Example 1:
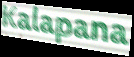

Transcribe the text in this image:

Kalapana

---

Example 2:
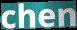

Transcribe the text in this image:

chen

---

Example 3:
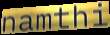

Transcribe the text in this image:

namthi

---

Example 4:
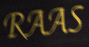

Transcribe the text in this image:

RAAS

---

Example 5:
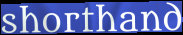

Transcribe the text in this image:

shorthand